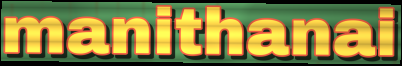
manithanai